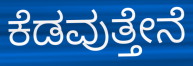
ಕೆಡವುತ್ತೇನೆ